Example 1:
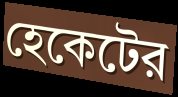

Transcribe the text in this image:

হেকেটের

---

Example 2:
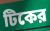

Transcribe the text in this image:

টিকের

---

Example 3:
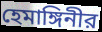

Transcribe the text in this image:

হেমাঙ্গিনীর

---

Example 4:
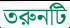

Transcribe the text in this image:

তরুনটি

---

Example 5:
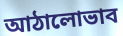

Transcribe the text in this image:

আঠালোভাব